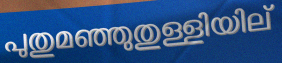
പുതുമഞ്ഞുതുള്ളിയില്